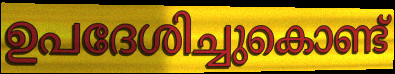
ഉപദേശിച്ചുകൊണ്ട്